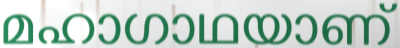
മഹാഗാഥയാണ്